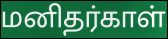
மனிதர்காள்